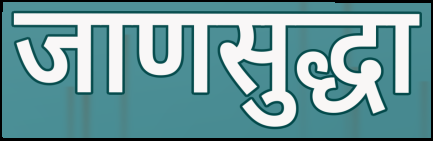
जाणसुद्धा